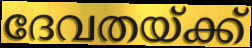
ദേവതയ്ക്ക്